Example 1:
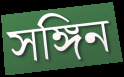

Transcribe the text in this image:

সঙ্গিন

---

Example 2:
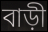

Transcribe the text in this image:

বাড়ী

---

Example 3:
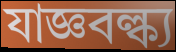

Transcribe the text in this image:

যাজ্ঞবল্ক্য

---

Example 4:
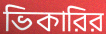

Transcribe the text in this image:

ভিকারির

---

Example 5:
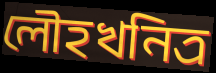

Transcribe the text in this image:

লৌহখনিত্র